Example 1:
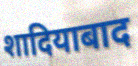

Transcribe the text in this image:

शादियाबाद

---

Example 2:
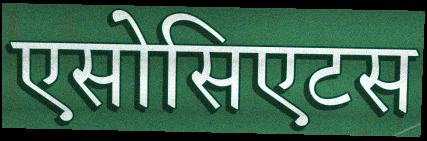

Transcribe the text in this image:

एसोसिएटस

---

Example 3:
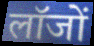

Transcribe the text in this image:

लॉजों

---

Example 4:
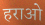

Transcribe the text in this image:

हराओ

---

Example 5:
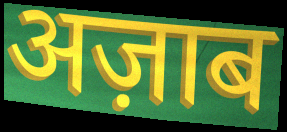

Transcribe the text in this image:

अज़ाब